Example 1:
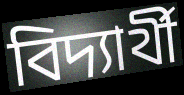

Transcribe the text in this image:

বিদ্যাৰ্থী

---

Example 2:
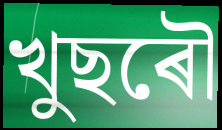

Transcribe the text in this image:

খুছৰৌ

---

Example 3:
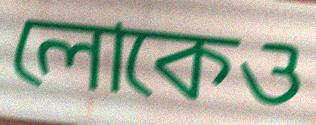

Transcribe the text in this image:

লোকেও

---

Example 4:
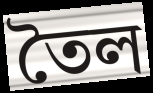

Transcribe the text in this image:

তৈল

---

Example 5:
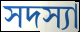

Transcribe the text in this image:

সদস্যা